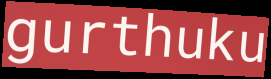
gurthuku